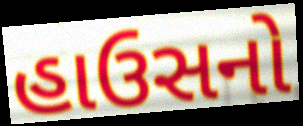
હાઉસનો